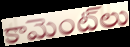
కామెంట్‌లు